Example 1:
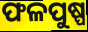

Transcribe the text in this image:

ଫଳପୁଷ୍ପ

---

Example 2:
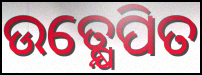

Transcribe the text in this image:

ଉତ୍କ୍ଷେପିତ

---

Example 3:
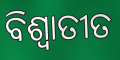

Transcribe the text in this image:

ବିଶ୍ଵାତୀତ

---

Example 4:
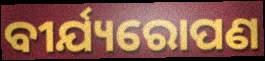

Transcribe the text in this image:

ବୀର୍ଯ୍ୟରୋପଣ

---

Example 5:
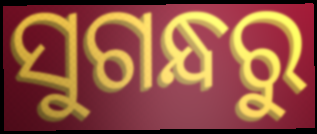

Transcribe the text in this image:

ସୁଗନ୍ଧରୁ